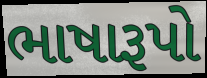
ભાષારૂપો